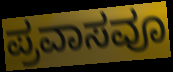
ಪ್ರವಾಸವೂ